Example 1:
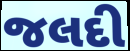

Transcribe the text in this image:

જલદી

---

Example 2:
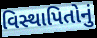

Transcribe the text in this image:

વિસ્થાપિતોનું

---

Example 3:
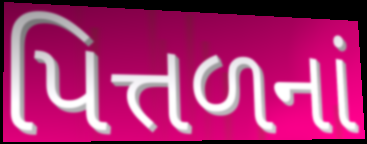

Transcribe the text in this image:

પિત્તળનાં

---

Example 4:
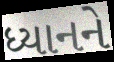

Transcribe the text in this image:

ધ્યાનને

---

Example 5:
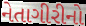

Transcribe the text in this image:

નેતાગીરીનો